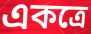
একত্রে